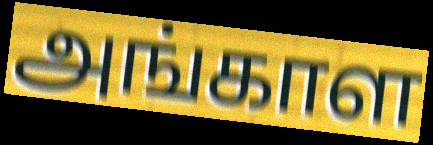
அங்காள